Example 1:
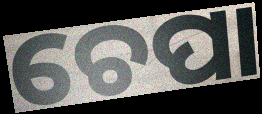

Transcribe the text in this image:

ଚେପା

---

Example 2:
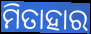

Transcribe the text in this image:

ମିତାହାର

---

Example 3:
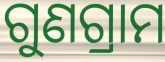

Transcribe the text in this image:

ଗୁଣଗ୍ରାମ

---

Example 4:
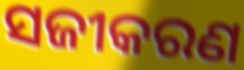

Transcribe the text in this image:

ସଜୀକରଣ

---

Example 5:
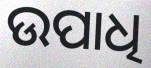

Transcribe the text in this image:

ଉପାଧି